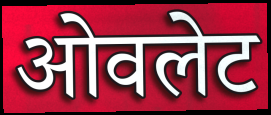
ओवलेट